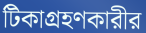
টিকাগ্রহণকারীর